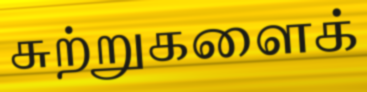
சுற்றுகளைக்